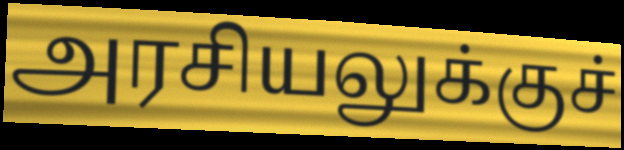
அரசியலுக்குச்